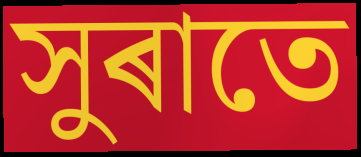
সুৰাতে